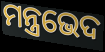
ମନ୍ତ୍ରଭେଦ